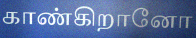
காண்கிறானோ